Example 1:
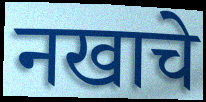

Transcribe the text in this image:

नखाचे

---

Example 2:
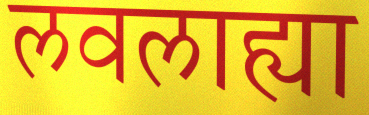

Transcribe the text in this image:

लवलाह्या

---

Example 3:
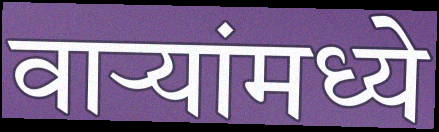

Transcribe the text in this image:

वाऱ्यांमध्ये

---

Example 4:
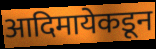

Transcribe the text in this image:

आदिमायेकडून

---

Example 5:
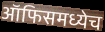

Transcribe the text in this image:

ऑफिसमध्येच